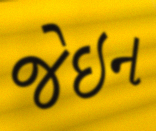
જેઇન